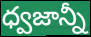
ధ్వజాన్నీ